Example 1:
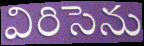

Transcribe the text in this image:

విరిసెను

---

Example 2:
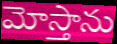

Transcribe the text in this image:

మోస్తాను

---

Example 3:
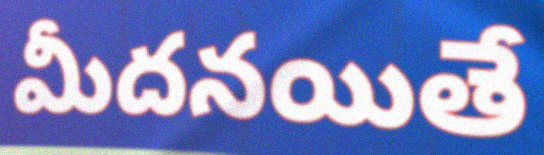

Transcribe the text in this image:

మీదనయితే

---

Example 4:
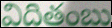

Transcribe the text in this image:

విదితంబు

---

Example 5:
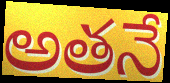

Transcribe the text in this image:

అతనే